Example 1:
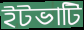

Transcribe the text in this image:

ইটভাটি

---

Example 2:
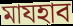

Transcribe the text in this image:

মাযহাব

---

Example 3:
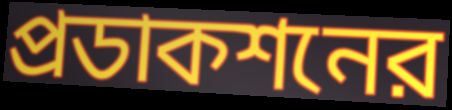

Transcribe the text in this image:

প্রডাকশনের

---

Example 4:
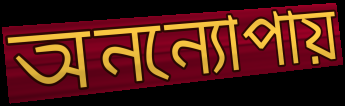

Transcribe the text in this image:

অনন্যোপায়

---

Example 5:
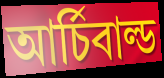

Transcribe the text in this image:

আর্চিবাল্ড